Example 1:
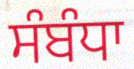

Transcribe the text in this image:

ਸੰਬੰਧਾ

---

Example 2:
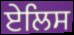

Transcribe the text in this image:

ਏਲਿਸ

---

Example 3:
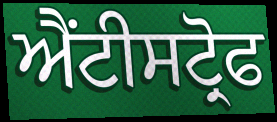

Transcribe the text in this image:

ਐਂਟੀਸਟ੍ਰੋਫ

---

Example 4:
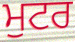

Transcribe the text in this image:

ਮੁਟਰ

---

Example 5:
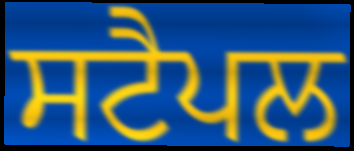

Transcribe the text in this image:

ਸਟੈਪਲ